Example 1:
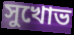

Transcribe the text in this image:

সুখোভ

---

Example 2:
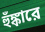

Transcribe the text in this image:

হুঁঙ্কারে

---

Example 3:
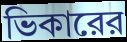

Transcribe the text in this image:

ভিকারের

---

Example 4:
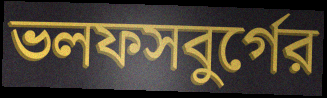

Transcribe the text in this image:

ভলফসবুর্গের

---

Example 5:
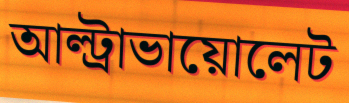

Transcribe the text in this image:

আল্ট্রাভায়োলেট